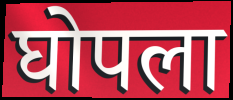
घोपला